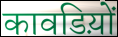
कावडिय़ों